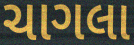
ચાગલા